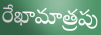
రేఖామాత్రపు